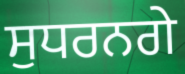
ਸੁਧਰਨਗੇ